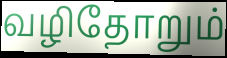
வழிதோறும்